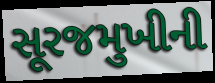
સૂરજમુખીની